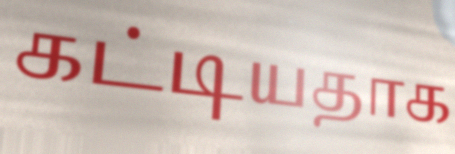
கட்டியதாக